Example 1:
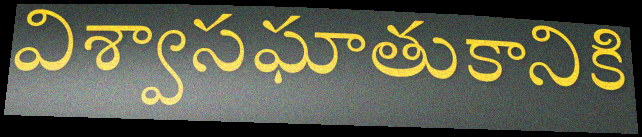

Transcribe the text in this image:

విశ్వాసఘాతుకానికి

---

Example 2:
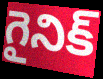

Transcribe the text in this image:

గైనిక్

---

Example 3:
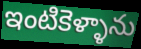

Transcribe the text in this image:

ఇంటికెళ్ళాను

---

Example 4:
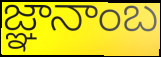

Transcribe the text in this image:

జ్ఞానాంబ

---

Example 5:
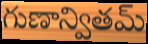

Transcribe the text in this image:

గుణాన్వితమ్